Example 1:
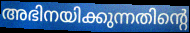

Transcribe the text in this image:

അഭിനയിക്കുന്നതിന്റെ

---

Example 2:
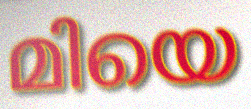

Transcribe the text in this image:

മിയെ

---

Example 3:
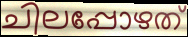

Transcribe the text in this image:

ചിലപ്പോഴത്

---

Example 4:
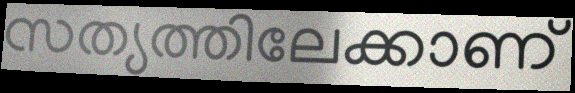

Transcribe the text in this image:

സത്യത്തിലേക്കാണ്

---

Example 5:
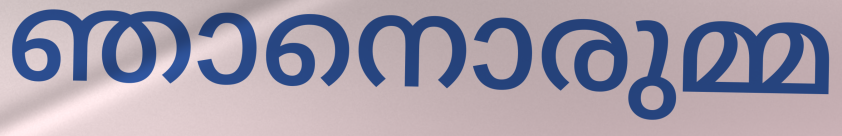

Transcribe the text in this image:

ഞാനൊരുമ്മ